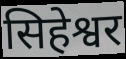
सिहेश्वर